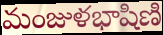
మంజుళభాషిణి